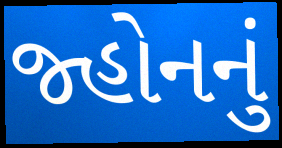
જ્હોનનું